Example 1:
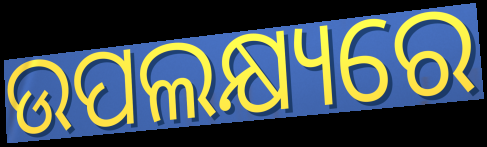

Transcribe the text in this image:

ଉପଲକ୍ଷ୍ୟରେ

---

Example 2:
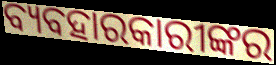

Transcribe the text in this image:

ବ୍ୟବହାରକାରୀଙ୍କର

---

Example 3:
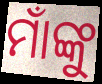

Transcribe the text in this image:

ମାଁଙ୍କୁ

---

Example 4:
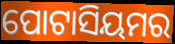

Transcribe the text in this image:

ପୋଟାସିୟମର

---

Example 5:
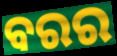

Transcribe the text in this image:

ବରର